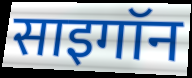
साइगॉन